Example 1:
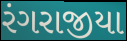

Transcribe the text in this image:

રંગરાજીયા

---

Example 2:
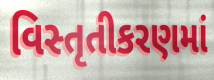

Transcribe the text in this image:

વિસ્તૃતીકરણમાં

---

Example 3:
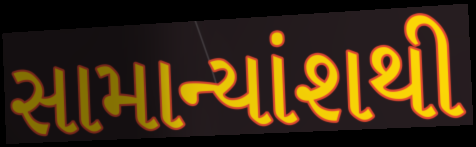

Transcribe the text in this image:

સામાન્યાંશથી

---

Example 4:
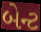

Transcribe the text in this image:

બેન્ટ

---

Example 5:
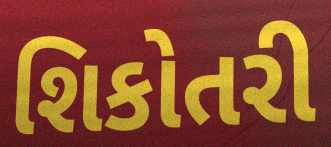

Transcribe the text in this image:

શિકોતરી